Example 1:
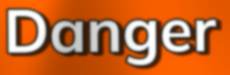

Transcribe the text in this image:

Danger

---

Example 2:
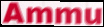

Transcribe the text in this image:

Ammu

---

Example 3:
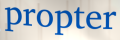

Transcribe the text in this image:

propter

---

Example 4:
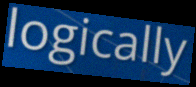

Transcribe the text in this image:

logically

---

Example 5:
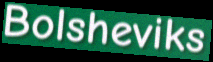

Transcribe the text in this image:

Bolsheviks